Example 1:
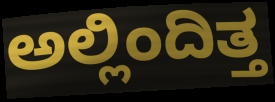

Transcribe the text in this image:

ಅಲ್ಲಿಂದಿತ್ತ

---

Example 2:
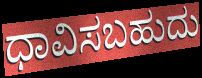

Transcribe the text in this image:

ಧಾವಿಸಬಹುದು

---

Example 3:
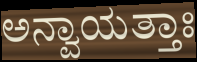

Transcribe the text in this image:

ಅನ್ವಾಯತ್ತಾಃ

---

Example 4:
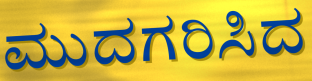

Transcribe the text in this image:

ಮುದಗರಿಸಿದ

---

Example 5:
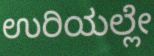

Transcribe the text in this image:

ಉರಿಯಲ್ಲೇ